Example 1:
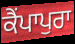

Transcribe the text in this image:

ਕੈਂਪਾਪੁਰਾ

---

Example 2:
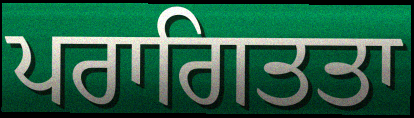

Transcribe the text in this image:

ਪਰਾਗਿਤਤਾ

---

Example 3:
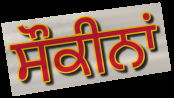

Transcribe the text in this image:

ਸੌਕੀਨਾਂ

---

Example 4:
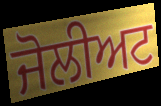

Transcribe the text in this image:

ਜੋਲੀਅਟ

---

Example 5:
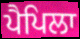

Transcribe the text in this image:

ਪੈਪਿਲਾ